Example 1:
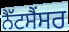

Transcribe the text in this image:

ਨੈੱਟਸੈਂਸਰ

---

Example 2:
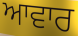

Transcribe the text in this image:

ਆਵਾਰ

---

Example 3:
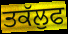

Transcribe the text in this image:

ਤਕੱਲੁਫ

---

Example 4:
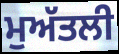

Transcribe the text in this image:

ਮੁਅੱਤਲੀ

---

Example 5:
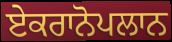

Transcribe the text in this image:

ਏਕਰਾਨੋਪਲਾਨ